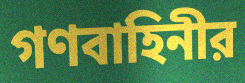
গণবাহিনীর